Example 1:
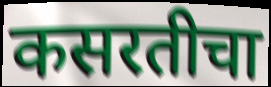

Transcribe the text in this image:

कसरतीचा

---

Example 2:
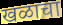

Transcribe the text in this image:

खळाचा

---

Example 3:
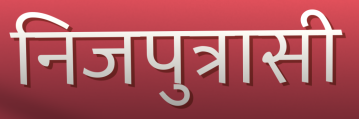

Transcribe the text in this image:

निजपुत्रासी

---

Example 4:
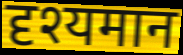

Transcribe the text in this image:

दृश्यमान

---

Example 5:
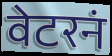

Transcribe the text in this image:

वेटरनं